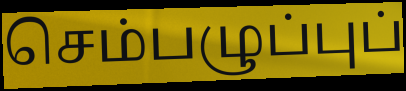
செம்பழுப்புப்